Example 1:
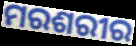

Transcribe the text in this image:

ମରଶରୀର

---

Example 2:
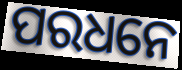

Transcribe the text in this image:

ପରଧନେ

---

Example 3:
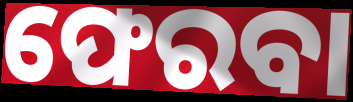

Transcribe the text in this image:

ଫେରବା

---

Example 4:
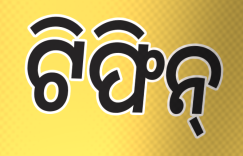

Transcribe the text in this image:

ଟିଫିନ୍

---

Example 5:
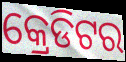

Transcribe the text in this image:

କ୍ରେଡିଟର